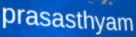
prasasthyam